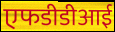
एफडीडीआई